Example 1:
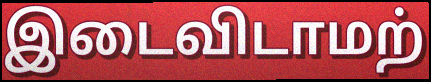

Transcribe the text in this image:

இடைவிடாமற்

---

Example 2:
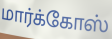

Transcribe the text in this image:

மார்க்கோஸ்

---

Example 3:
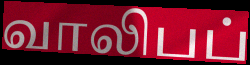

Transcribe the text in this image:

வாலிபப்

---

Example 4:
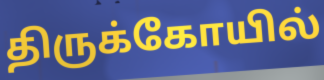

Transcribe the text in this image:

திருக்கோயில்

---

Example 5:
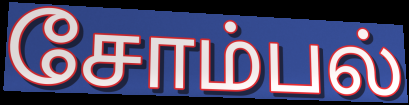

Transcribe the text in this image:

சோம்பல்